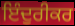
ਇੰਦੁਰੀਕਰ